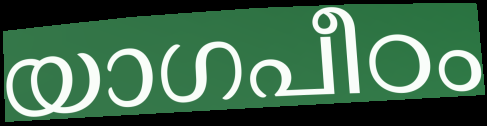
യാഗപീഠം